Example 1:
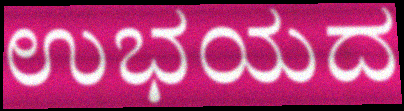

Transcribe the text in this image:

ಉಭಯದ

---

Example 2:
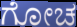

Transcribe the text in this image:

ಗೋಚ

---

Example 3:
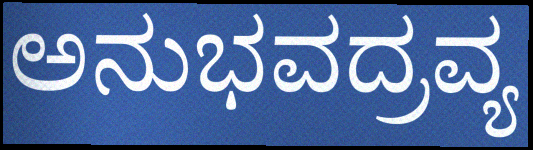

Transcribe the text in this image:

ಅನುಭವದ್ರವ್ಯ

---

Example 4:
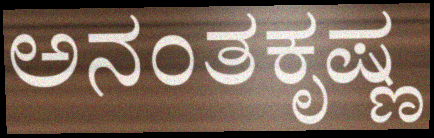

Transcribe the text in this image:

ಅನಂತಕೃಷ್ಣ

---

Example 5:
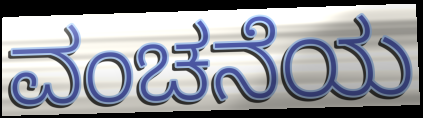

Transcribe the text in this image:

ವಂಚನೆಯ